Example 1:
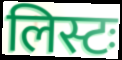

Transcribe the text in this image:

लिस्टः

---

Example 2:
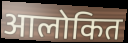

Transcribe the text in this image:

आलोकित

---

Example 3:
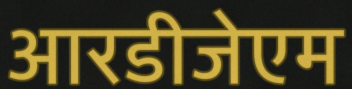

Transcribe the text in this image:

आरडीजेएम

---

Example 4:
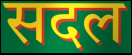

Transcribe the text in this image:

सदल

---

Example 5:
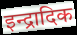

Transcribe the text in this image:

इन्द्रादिक